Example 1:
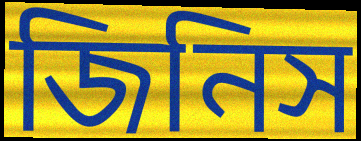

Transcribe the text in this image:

জিনিস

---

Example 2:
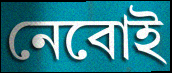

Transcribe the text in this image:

নেবোই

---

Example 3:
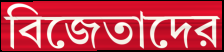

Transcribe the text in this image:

বিজেতাদের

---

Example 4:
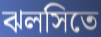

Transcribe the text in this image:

ঝলসিতে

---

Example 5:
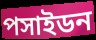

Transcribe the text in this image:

পসাইডন